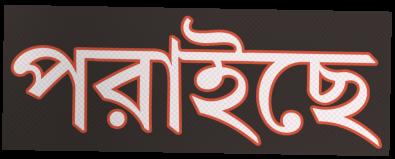
পরাইছে